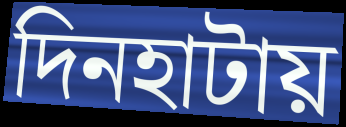
দিনহাটায়